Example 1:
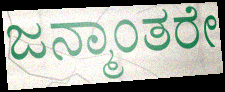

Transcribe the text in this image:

ಜನ್ಮಾಂತರೇ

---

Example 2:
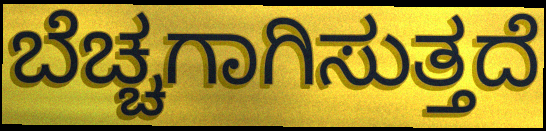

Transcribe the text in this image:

ಬೆಚ್ಚಗಾಗಿಸುತ್ತದೆ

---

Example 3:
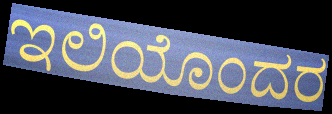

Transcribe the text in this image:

ಇಲಿಯೊಂದರ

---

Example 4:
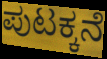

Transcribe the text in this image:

ಪುಟಕ್ಕನೆ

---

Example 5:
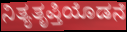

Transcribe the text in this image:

ನಿತ್ಯತೃಪ್ತಿಯೊಡನೆ